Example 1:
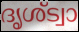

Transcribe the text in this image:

ദൃശ്ട്വാ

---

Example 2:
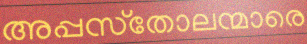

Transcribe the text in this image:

അപ്പസ്‌തോലന്മാരെ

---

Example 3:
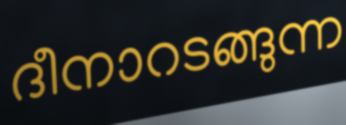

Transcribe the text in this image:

ദീനാറടങ്ങുന്ന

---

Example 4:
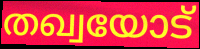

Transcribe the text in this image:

തഖ്വയോട്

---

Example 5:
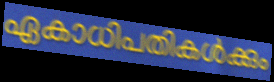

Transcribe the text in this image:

ഏകാധിപതികൾക്കും